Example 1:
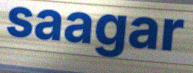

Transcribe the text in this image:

saagar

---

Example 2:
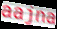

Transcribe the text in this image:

aajna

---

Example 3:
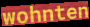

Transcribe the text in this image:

wohnten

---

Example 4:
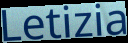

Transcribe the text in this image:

Letizia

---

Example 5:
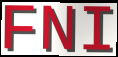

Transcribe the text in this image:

FNI